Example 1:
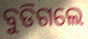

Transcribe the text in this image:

ବୁଡିଗଲେ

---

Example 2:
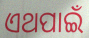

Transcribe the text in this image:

ଏଥପାଇଁ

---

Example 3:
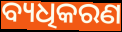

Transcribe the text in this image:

ବ୍ୟଧିକରଣ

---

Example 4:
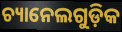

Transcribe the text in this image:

ଚ୍ୟାନେଲଗୁଡ଼ିକ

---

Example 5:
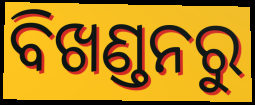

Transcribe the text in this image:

ବିଖଣ୍ଡନରୁ